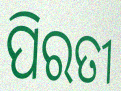
ପିରତୀ